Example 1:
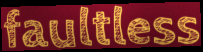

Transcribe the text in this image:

faultless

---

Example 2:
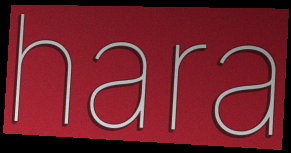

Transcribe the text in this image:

hara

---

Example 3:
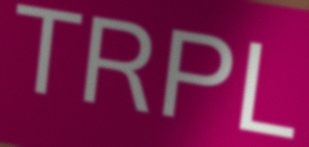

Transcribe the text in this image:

TRPL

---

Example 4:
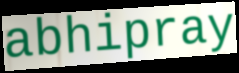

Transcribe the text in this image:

abhipray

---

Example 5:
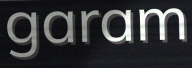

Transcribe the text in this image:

garam